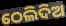
ଠେଲିଦିଅ